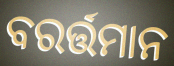
ବରର୍ତ୍ତମାନ